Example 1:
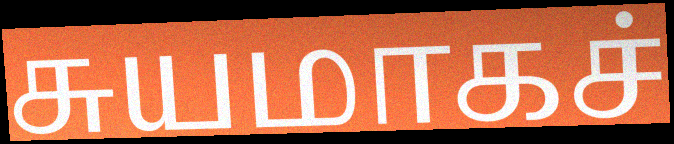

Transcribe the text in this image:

சுயமாகச்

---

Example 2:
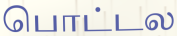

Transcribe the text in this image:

பொட்டல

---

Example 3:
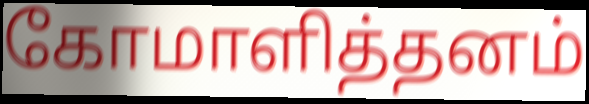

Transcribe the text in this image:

கோமாளித்தனம்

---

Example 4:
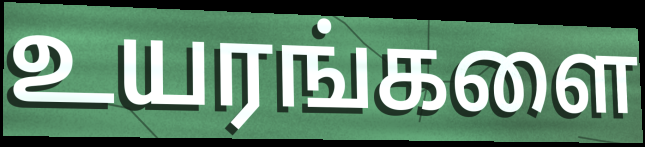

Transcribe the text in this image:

உயரங்களை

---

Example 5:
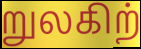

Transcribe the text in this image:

றுலகிற்